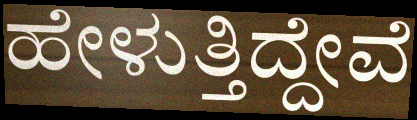
ಹೇಳುತ್ತಿದ್ದೇವೆ